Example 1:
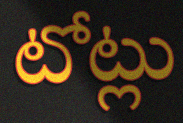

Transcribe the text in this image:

టోట్లు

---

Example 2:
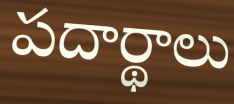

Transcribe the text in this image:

పదార్థాలు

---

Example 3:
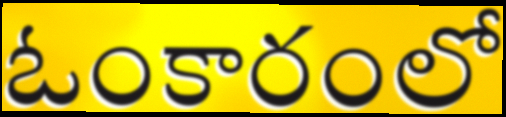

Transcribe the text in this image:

ఓంకారంలో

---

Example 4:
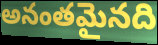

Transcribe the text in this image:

అనంతమైనది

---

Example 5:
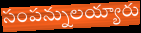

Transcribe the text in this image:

సంపన్నులయ్యారు